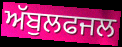
ਅੱਬੁਲਫਜਲ